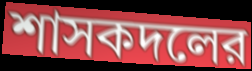
শাসকদলের